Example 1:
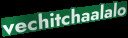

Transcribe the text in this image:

vechitchaalalo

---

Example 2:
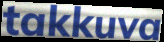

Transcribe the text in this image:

takkuva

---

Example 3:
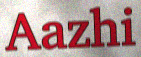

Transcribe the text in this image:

Aazhi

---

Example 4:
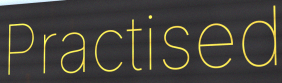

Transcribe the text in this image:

Practised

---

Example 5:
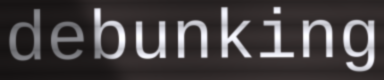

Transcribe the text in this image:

debunking